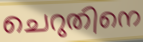
ചെറുതിനെ